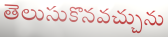
తెలుసుకొనవచ్చును